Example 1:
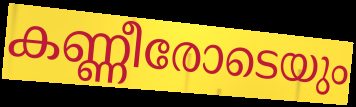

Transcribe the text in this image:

കണ്ണീരോടെയും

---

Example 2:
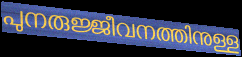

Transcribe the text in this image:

പുനരുജ്ജീവനത്തിനുള്ള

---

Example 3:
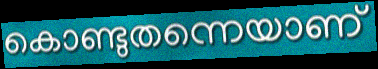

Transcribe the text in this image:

കൊണ്ടുതന്നെയാണ്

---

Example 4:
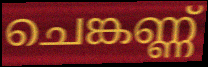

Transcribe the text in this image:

ചെങ്കണ്ണ്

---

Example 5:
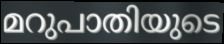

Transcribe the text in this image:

മറുപാതിയുടെ